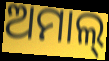
ଅମାଲ୍